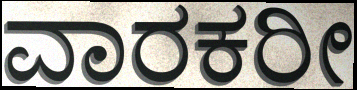
ವಾರಕರೀ